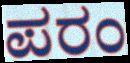
ಪರಂ